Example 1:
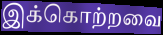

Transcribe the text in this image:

இக்கொற்றவை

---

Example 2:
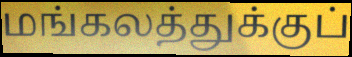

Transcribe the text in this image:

மங்கலத்துக்குப்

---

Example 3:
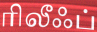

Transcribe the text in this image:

ரிலீஃப்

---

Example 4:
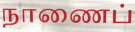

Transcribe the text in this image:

நாணைப்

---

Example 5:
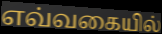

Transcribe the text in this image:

எவ்வகையில்